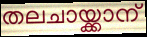
തലചായ്ക്കാന്